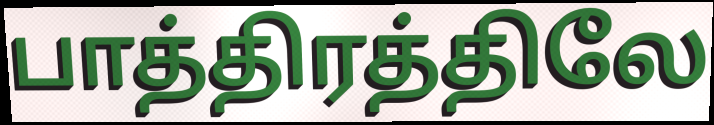
பாத்திரத்திலே